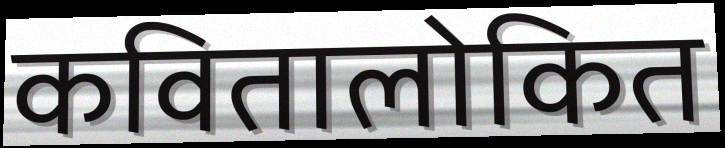
कवितालोकित